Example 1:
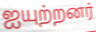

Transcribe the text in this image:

ஐயுற்றனர்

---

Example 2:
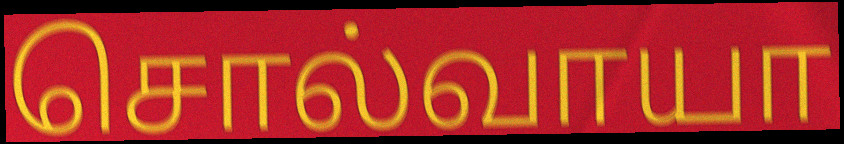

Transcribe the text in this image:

சொல்வாயா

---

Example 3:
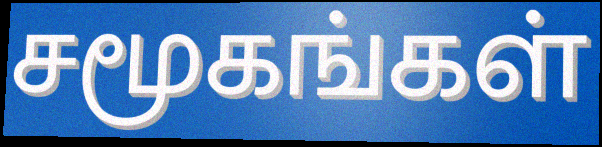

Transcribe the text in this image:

சமூகங்கள்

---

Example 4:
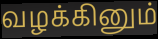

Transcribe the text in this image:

வழக்கினும்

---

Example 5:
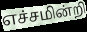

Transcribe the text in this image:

எச்சமின்றி